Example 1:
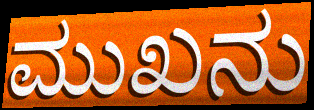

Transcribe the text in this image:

ಮುಖನು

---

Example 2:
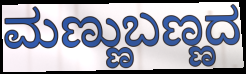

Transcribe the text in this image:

ಮಣ್ಣುಬಣ್ಣದ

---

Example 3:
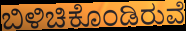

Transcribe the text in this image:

ಬಿಳಿಚಿಕೊಂಡಿರುವೆ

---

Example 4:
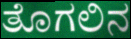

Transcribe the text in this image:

ತೊಗಲಿನ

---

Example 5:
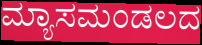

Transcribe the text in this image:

ಮ್ಯಾಸಮಂಡಲದ